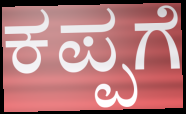
ಕಪ್ಪಗೆ